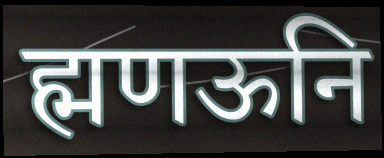
ह्मणऊनि